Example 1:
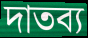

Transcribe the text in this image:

দাতব্য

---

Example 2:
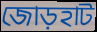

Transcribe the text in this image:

জোড়হাট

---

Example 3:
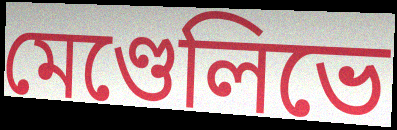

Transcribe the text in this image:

মেণ্ডেলিভে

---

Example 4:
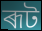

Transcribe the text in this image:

ৰূট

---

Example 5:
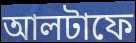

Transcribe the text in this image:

আলটাফে